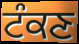
ਟੰਕਣ